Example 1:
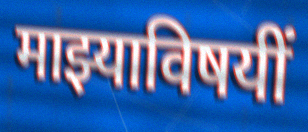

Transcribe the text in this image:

माझ्याविषयीं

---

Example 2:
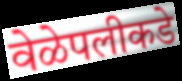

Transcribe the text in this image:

वेळेपलीकडे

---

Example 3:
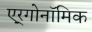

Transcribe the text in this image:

एर्गोनॉमिक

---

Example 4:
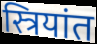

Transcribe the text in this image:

स्त्रियांत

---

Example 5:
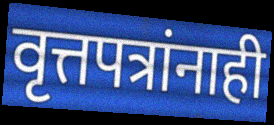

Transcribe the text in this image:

वृत्तपत्रांनाही